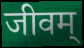
जीवम्